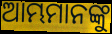
ଆମ୍ଭମାନଙ୍କୁ